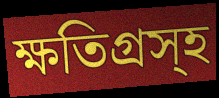
ক্ষতিগ্রস্হ